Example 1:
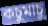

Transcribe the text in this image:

কচুমাচু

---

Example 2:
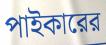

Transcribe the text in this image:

পাইকারের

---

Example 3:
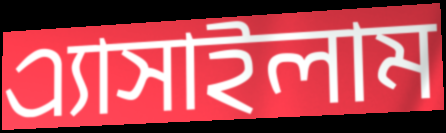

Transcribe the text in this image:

এ্যাসাইলাম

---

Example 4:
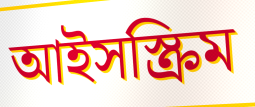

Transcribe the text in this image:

আইসস্ক্রিম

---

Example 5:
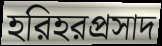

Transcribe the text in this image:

হরিহরপ্রসাদ